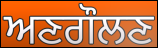
ਅਣਗੌਲਣ